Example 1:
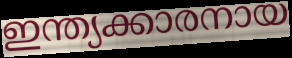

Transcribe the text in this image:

ഇന്ത്യക്കാരനായ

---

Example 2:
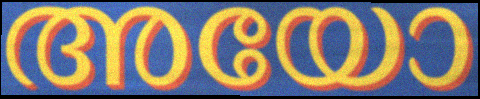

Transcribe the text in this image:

അയോ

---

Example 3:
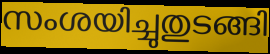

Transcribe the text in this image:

സംശയിച്ചുതുടങ്ങി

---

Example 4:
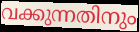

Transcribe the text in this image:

വക്കുന്നതിനും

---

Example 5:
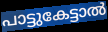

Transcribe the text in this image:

പാട്ടുകേട്ടാൽ